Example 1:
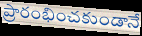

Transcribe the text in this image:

ప్రారంభించకుండానే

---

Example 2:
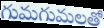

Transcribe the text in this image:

గుమగుమలతో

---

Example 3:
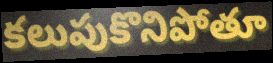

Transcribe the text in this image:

కలుపుకొనిపోతూ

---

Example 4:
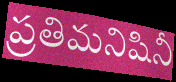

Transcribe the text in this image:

ప్రతిమనిషినీ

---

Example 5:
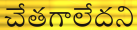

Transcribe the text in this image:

చేతగాలేదని